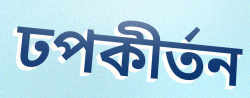
ঢপকীর্তন